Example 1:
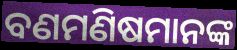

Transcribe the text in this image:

ବଣମଣିଷମାନଙ୍କ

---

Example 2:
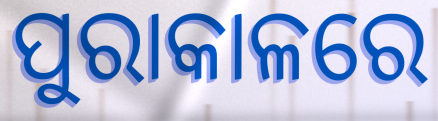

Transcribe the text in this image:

ପୁରାକାଳରେ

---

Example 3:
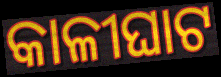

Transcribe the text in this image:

କାଳୀଘାଟ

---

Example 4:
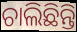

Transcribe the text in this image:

ଚାଲିଛିନ୍ତି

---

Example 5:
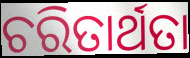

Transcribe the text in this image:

ଚରିତାର୍ଥତା